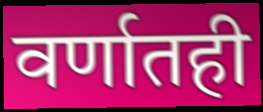
वर्णातही